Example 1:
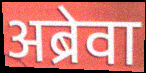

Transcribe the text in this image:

अब्रेवा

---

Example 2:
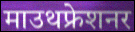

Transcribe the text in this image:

माउथफ्रेशनर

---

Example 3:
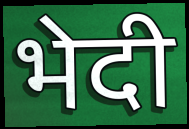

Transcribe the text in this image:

भेदी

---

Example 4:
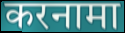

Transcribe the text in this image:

करनामा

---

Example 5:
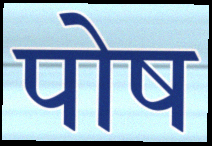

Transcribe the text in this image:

पोष